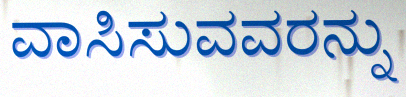
ವಾಸಿಸುವವರನ್ನು